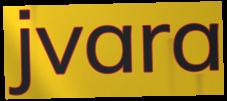
jvara